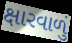
ક્ષારવાળું